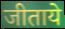
जीताये